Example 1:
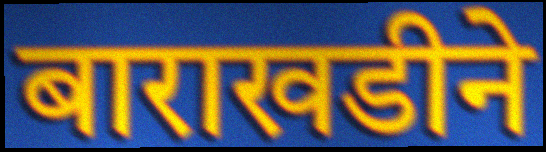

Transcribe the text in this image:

बाराखडीने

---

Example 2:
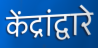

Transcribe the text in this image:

केंद्रांद्वारे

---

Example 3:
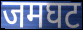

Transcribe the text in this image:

जमघट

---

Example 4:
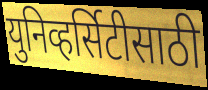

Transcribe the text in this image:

युनिव्हर्सिटीसाठी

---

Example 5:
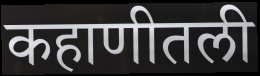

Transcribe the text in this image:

कहाणीतली